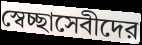
স্বেচ্ছাসেবীদের